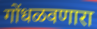
गोंधळवणारा